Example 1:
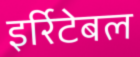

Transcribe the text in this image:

इर्रिटेबल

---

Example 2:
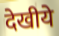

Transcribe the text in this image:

देखीये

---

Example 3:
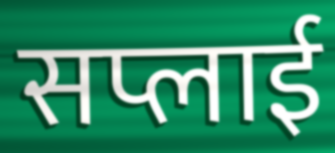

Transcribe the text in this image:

सप्लाई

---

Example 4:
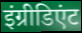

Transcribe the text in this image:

इंग्रीडिएंट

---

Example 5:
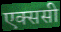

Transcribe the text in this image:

एक्ससी